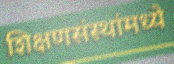
शिक्षणसंस्थांमध्ये